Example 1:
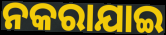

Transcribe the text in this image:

ନକରାଯାଇ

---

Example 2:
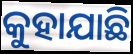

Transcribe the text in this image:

କୁହାଯାଛି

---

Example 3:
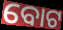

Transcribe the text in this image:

ବୋଟ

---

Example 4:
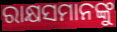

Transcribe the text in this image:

ରାକ୍ଷସମାନଙ୍କୁ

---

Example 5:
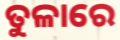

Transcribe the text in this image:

ତୁଳାରେ